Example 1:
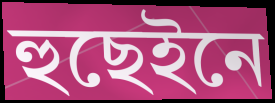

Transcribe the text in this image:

হুছেইনে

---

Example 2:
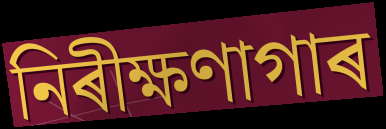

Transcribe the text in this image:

নিৰীক্ষণাগাৰ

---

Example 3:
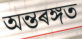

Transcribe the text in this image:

অন্তৰঙ্গত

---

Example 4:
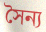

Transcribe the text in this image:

সৈন্য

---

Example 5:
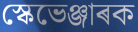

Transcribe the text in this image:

স্কেভেঞ্জাৰক